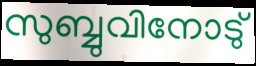
സുബ്ബുവിനോടു്